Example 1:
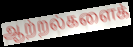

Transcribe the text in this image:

ஆற்றல்களைக்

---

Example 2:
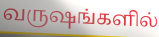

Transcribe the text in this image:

வருஷங்களில்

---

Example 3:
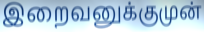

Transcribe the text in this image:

இறைவனுக்குமுன்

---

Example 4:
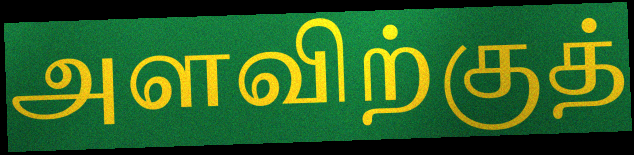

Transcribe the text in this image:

அளவிற்குத்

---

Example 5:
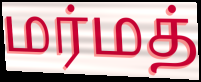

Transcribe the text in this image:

மர்மத்